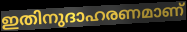
ഇതിനുദാഹരണമാണ്